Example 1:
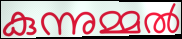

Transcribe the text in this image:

കുന്നുമ്മൽ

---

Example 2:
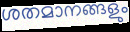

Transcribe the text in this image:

ശതമാനങ്ങളും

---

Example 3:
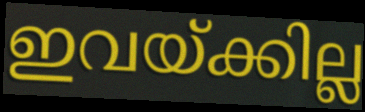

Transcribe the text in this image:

ഇവയ്ക്കില്ല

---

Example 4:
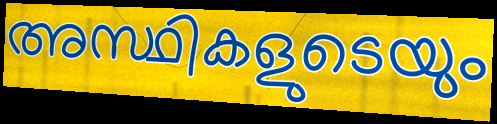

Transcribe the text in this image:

അസ്ഥികളുടെയും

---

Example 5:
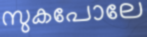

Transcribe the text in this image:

സുകപോലേ